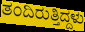
ತಂದಿರುತ್ತಿದ್ದಳು